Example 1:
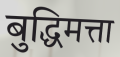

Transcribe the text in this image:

बुद्धिमत्ता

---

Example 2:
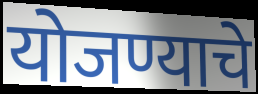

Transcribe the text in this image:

योजण्याचे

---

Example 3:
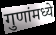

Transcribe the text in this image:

गुणांमध्ये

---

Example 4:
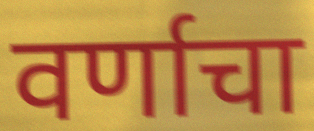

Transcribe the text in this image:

वर्णाचा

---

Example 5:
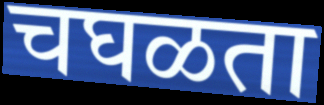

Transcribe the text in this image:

चघळता